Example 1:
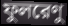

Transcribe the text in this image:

ফুলরেণু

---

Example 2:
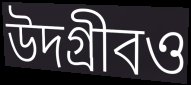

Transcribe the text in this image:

উদগ্রীবও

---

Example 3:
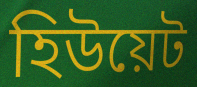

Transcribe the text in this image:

হিউয়েট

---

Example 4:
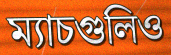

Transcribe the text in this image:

ম্যাচগুলিও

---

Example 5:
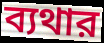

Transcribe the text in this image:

ব্যথার